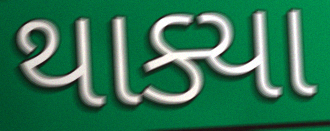
થાક્યા